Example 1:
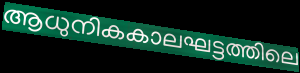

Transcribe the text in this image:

ആധുനികകാലഘട്ടത്തിലെ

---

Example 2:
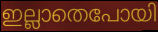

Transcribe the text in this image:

ഇല്ലാതെപോയി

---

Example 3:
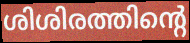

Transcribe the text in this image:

ശിശിരത്തിന്റെ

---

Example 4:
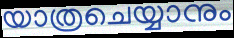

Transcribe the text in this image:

യാത്രചെയ്യാനും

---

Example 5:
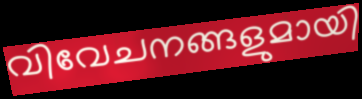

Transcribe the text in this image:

വിവേചനങ്ങളുമായി